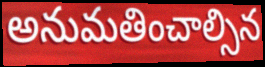
అనుమతించాల్సిన